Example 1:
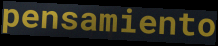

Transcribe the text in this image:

pensamiento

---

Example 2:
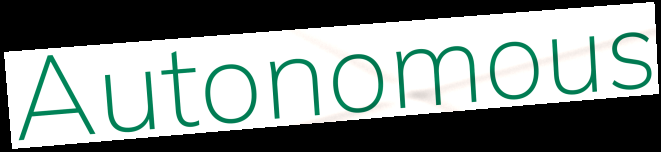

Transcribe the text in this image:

Autonomous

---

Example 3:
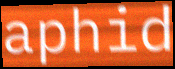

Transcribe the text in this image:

aphid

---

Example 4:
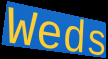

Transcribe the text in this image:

Weds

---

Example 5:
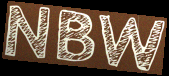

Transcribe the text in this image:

NBW